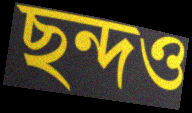
ছন্দও